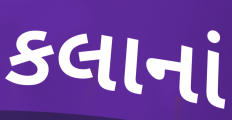
કલાનાં